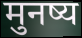
मुनष्य